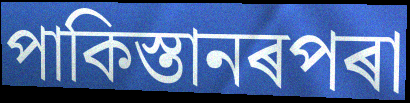
পাকিস্তানৰপৰা